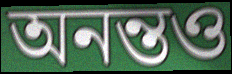
অনন্তও